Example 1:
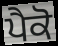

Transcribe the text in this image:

ਪੈਕੋ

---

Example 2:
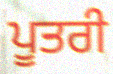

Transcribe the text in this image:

ਪੂਤਰੀ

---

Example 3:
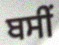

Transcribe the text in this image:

ਬਸੀਂ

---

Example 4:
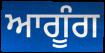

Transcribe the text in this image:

ਆਗੂੰਗ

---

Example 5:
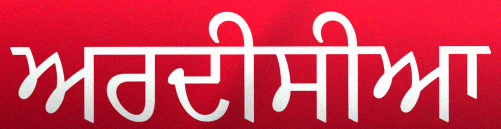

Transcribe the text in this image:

ਅਰਦੀਸੀਆ